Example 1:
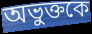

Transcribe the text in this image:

অভুক্তকে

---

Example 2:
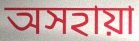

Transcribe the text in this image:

অসহায়া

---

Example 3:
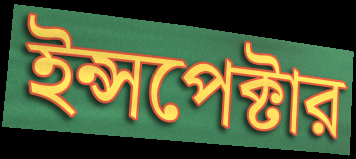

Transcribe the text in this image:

ইন্সপেক্টার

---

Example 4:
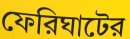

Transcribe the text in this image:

ফেরিঘাটের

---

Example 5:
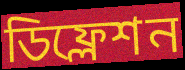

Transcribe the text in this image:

ডিফ্লেশন